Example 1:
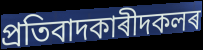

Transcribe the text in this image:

প্ৰতিবাদকাৰীদকলৰ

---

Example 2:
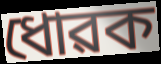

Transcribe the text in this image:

ধোৱক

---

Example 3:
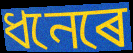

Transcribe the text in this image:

ধনেৰে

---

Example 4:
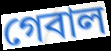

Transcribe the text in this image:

গেবাল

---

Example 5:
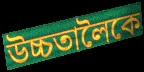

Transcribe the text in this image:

উচ্চতালৈকে